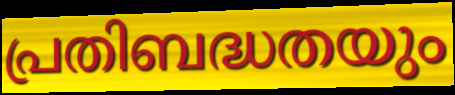
പ്രതിബദ്ധതയും